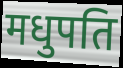
मधुपति